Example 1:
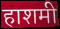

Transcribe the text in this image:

हाशमी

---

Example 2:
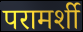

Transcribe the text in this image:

परामर्शी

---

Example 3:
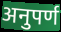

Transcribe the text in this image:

अनुपर्ण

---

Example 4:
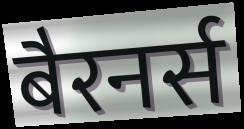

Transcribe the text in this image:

बैरनर्स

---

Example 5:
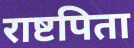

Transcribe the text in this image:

राष्टपिता